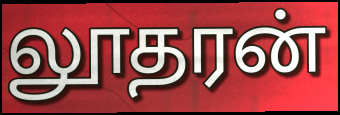
லூதரன்